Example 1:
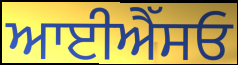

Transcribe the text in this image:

ਆਈਐੱਸਓ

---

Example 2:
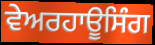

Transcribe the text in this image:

ਵੇਅਰਹਾਊਸਿੰਗ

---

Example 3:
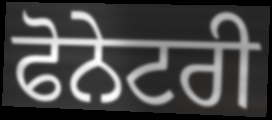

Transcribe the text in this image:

ਫੋਨੇਟਰੀ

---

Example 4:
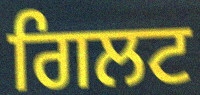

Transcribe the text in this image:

ਗਿਲਟ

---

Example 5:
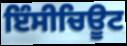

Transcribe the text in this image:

ਇੰਸੀਚਿਊਟ